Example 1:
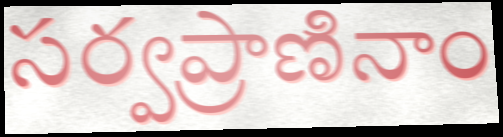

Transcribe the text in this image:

సర్వప్రాణినాం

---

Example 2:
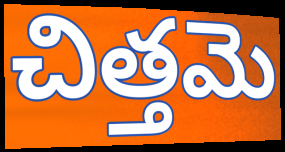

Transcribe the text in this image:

చిత్తమె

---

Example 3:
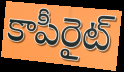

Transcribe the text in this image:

కాపీరైట్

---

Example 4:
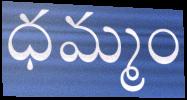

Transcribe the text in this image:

ధమ్మం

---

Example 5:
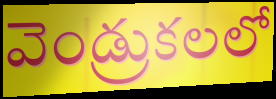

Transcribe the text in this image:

వెండ్రుకలలో